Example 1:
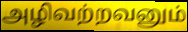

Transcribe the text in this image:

அழிவற்றவனும்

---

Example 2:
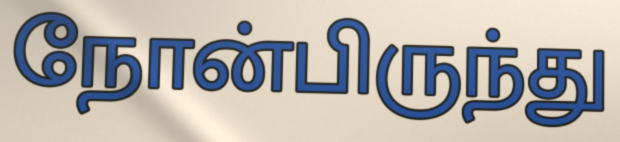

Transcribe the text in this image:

நோன்பிருந்து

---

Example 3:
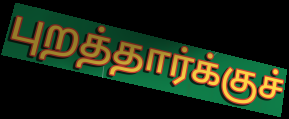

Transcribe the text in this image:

புறத்தார்க்குச்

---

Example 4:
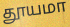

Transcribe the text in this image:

தூயமா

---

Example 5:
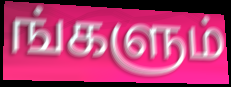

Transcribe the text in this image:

ங்களும்